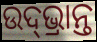
ଉଦ୍‌ଭ୍ରାନ୍ତ